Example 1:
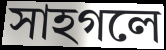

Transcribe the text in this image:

সাহগলে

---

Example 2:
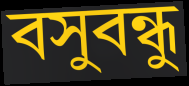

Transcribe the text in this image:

বসুবন্ধু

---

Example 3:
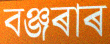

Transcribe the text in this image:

বঞ্জৰাৰ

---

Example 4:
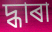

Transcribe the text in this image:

দ্ধাৰা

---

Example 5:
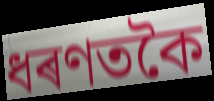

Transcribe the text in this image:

ধৰণতকৈ